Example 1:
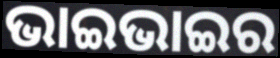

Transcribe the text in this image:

ଭାଇଭାଇର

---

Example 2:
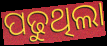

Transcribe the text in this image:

ପଢୁଥିଲା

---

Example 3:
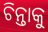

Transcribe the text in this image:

ଚିନ୍ତାକୁ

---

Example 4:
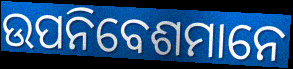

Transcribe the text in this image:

ଉପନିବେଶମାନେ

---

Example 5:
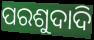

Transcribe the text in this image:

ପରଶୁଦାଦି